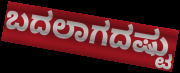
ಬದಲಾಗದಷ್ಟು